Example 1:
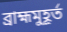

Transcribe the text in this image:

ব্রাহ্মমুহূর্ত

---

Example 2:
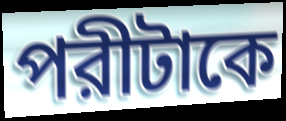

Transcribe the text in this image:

পরীটাকে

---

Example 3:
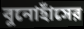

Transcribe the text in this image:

বুনোহাঁসের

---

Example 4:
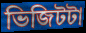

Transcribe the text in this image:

ভিজিটটা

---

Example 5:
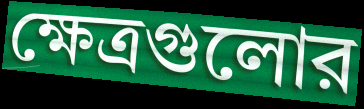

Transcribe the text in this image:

ক্ষেত্রগুলোর